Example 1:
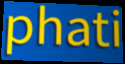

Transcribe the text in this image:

phati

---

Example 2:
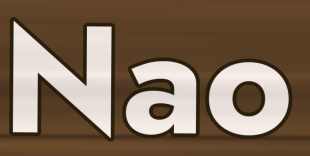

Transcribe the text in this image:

Nao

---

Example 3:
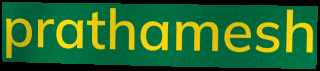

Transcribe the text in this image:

prathamesh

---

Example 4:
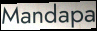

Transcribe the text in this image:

Mandapa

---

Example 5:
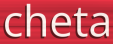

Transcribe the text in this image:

cheta